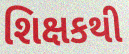
શિક્ષકથી